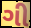
ગી